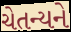
ચેતન્યને